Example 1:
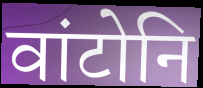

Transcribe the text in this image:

वांटोनि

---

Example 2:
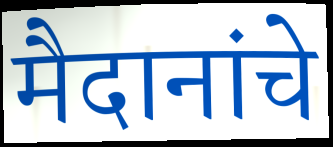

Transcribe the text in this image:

मैदानांचे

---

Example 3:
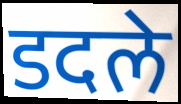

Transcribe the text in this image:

डदले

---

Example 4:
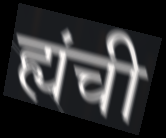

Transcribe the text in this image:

ह्यंची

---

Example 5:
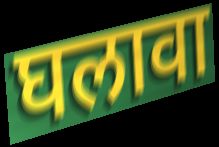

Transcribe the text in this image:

घलावा